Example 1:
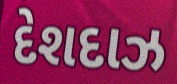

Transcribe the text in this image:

દેશદાઝ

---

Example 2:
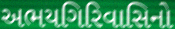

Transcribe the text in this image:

અભયગિરિવાસિનો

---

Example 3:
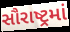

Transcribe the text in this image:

સૌરાષ્ટ્રમાં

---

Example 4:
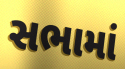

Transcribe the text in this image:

સભામાં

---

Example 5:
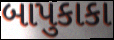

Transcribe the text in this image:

બાપુકાકા